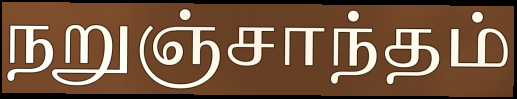
நறுஞ்சாந்தம்